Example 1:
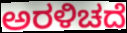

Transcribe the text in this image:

ಅರಳಿಚದೆ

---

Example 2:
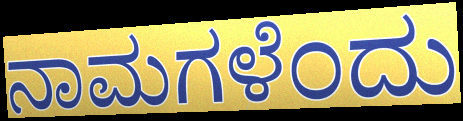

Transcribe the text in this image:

ನಾಮಗಳೆಂದು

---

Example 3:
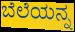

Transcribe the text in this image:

ಬೆಲೆಯನ್ನ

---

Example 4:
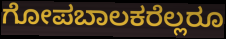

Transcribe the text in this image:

ಗೋಪಬಾಲಕರೆಲ್ಲರೂ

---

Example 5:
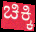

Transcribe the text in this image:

ಚಿಕ್ಕಿ